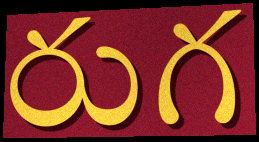
రుగ